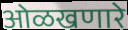
ओळखणारे